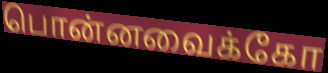
பொன்னவைக்கோ